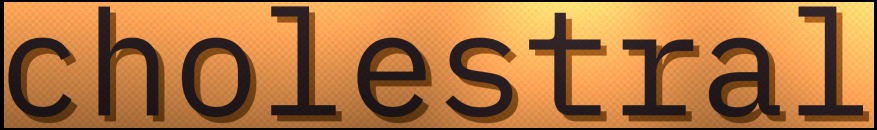
cholestral